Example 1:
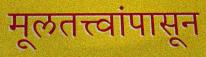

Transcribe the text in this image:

मूलतत्त्वांपासून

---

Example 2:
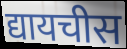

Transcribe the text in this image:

द्यायचीस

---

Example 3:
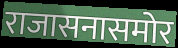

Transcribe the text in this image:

राजासनासमोर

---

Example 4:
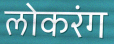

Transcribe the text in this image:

लोकरंग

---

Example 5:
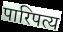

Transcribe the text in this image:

पारिपत्य